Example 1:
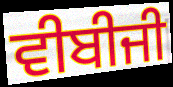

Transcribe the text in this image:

ਵੀਬੀਜੀ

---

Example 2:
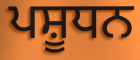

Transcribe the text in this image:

ਪਸ਼ੂਧਨ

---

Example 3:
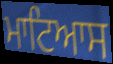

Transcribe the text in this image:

ਮਾਟਿਆਸ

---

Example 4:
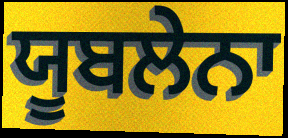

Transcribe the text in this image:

ਯੂਬਲੇਨਾ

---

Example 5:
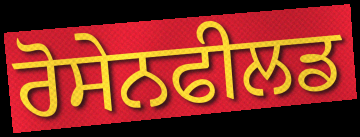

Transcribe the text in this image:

ਰੋਸੇਨਫੀਲਡ